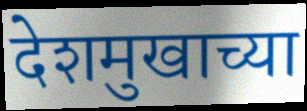
देशमुखाच्या